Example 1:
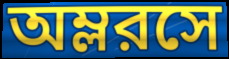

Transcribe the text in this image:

অম্লরসে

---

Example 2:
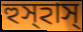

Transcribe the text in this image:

হুস্‌হাস্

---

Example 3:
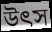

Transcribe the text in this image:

উত্‍স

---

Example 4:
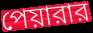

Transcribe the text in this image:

পেয়ারার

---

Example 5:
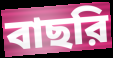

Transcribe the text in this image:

বাছরি